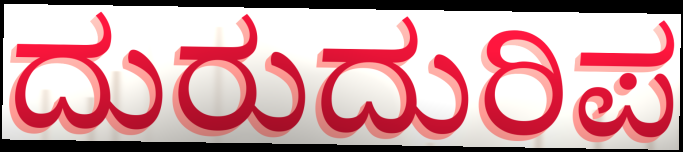
ದುರುದುರಿಪ